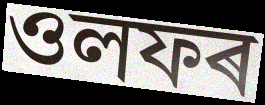
ওলফৰ